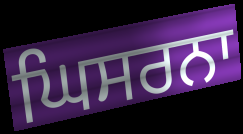
ਘਿਸਰਨਾ